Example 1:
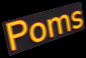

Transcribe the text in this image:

Poms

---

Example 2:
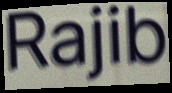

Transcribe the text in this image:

Rajib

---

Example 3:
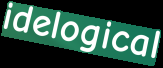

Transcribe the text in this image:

idelogical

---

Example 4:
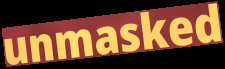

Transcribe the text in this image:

unmasked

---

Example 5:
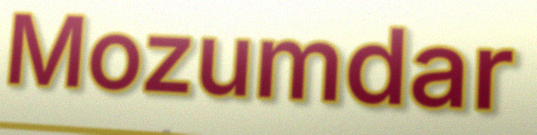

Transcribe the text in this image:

Mozumdar